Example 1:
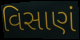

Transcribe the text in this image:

વિસાણં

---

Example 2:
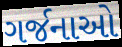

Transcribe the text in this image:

ગર્જનાઓ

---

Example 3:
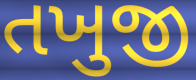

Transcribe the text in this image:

તખુજી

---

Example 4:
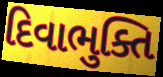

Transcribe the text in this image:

દિવાભુક્તિ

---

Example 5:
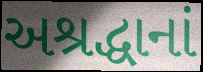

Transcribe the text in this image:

અશ્રદ્ધાનાં